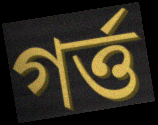
গর্ত্ত